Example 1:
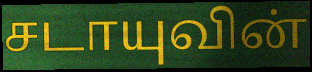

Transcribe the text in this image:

சடாயுவின்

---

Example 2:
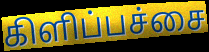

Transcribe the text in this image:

கிளிப்பச்சை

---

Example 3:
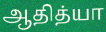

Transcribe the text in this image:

ஆதித்யா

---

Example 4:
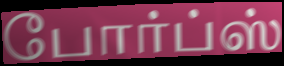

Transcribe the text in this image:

போர்ப்ஸ்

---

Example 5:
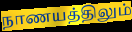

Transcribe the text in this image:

நாணயத்திலும்